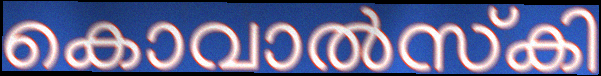
കൊവാൽസ്‌കി